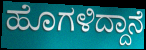
ಹೊಗಳಿದ್ದಾನೆ